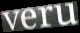
veru